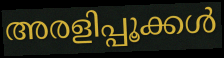
അരളിപ്പൂക്കൾ